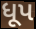
ધૂપ